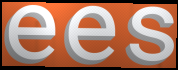
ees